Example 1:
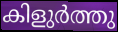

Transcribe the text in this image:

കിളുർത്തു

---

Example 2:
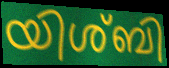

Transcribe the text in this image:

യിശ്ബി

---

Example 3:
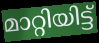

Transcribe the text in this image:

മാറ്റിയിട്ട്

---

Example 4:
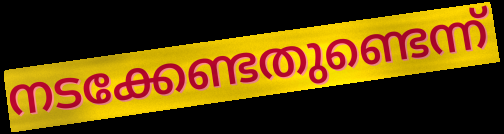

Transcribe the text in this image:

നടക്കേണ്ടതുണ്ടെന്ന്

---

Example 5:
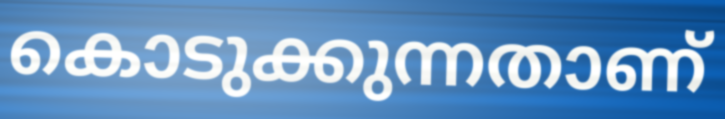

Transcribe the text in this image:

കൊടുക്കുന്നതാണ്